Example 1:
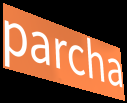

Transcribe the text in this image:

parcha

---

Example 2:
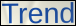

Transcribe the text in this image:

Trend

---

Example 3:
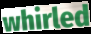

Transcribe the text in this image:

whirled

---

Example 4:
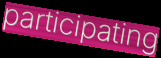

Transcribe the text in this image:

participating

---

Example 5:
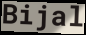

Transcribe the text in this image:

Bijal